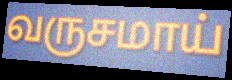
வருசமாய்